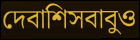
দেবাশিসবাবুও